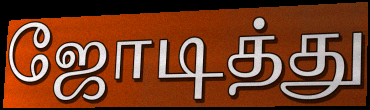
ஜோடித்து